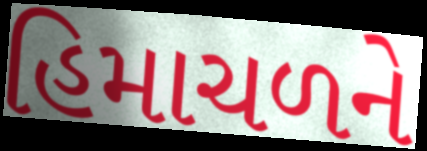
હિમાચળને